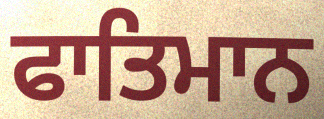
ਫਾਤਿਮਾਨ